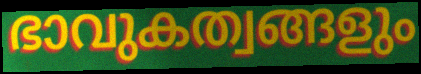
ഭാവുകത്വങ്ങളും